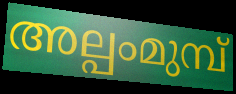
അല്പംമുമ്പ്